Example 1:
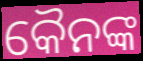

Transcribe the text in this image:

କୈନଙ୍କ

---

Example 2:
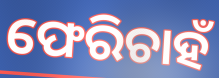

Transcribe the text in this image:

ଫେରିଚାହଁ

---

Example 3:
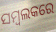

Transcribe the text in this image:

ସମ୍ବଲକରେ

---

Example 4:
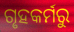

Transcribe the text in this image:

ଗୃହକର୍ମରୁ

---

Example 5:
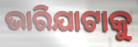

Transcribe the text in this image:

ଭାରିଯାଟାକୁ